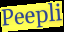
Peepli